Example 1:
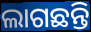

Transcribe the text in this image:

ଲାଗଛନ୍ତି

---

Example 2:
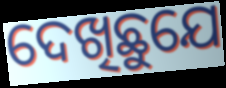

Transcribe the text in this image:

ଦେଖିଛୁଯେ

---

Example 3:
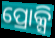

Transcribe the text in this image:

ପ୍ରୋକ୍ସି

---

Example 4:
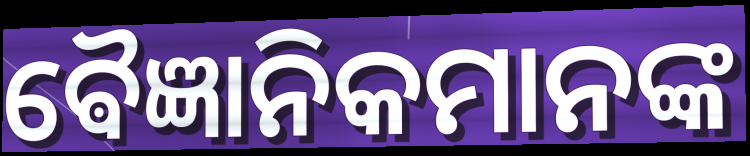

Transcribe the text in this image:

ଵୈଜ୍ଞାନିକମାନଙ୍କ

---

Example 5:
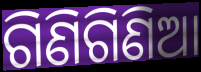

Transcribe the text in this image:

ଗିଣିଗିଣିଆ